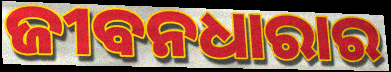
ଜୀବନଧାରାର